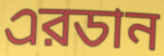
এরডান